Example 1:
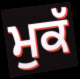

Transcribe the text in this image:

ਮੁਕੱ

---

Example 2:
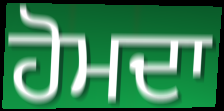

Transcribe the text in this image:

ਹੋਮਦਾ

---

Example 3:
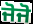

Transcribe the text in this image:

ਜੋਜੋ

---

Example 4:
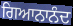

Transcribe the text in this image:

ਗਿਆਨਾਨੰਦ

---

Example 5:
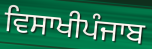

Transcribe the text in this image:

ਵਿਸਾਖੀਪੰਜਾਬ